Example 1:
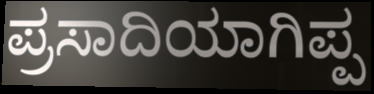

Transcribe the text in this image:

ಪ್ರಸಾದಿಯಾಗಿಪ್ಪ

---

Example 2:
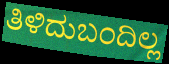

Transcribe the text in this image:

ತಿಳಿದುಬಂದಿಲ್ಲ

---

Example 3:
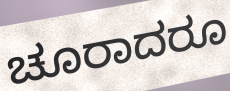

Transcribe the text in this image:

ಚೂರಾದರೂ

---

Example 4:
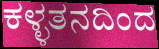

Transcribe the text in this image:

ಕಳ್ಳತನದಿಂದ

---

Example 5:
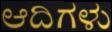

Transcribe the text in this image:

ಆದಿಗಳು